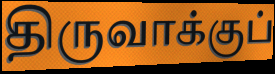
திருவாக்குப்